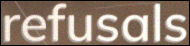
refusals